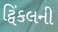
ટ્વિંકલની